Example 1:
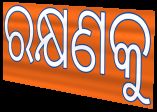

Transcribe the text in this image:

ରକ୍ଷଣକୁ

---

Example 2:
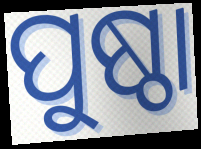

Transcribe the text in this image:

ପୁଷ୍ଠା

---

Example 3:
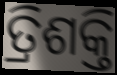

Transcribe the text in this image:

ତ୍ରିଶକ୍ତି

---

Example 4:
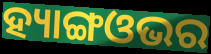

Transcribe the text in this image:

ହ୍ୟାଙ୍ଗଓଭର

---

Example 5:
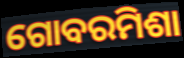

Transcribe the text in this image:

ଗୋବରମିଶା